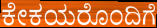
ಕೇಕಯರೊಂದಿಗೆ